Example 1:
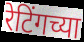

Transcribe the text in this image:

रेटिंगच्या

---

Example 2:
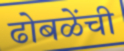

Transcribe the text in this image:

ढोबळेंची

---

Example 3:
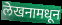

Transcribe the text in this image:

लेखनामधून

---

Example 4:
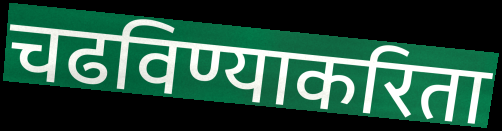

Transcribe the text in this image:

चढविण्याकरिता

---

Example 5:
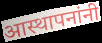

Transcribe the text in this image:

आस्थापनांनी